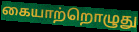
கையாற்றொழுது